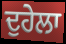
ਦੁਹੇਲਾ